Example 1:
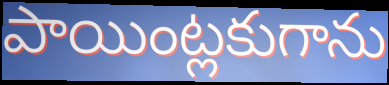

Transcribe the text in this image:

పాయింట్లకుగాను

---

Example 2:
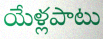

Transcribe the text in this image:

యేళ్లపాటు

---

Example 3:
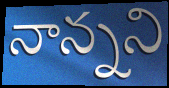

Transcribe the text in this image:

నాన్నని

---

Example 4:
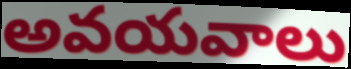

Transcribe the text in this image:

అవయవాలు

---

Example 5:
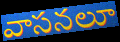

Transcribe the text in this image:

వాసనలూ